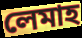
লেমাহ